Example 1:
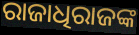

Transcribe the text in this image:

ରାଜାଧିରାଜଙ୍କ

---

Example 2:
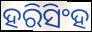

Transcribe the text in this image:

ହରିସିଂହ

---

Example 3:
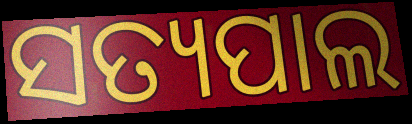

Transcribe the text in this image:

ସତ୍ୟପାଲ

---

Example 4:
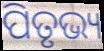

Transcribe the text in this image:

ପିତୃଭ୍ୟ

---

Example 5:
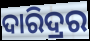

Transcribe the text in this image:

ଦାରିଦ୍ରର